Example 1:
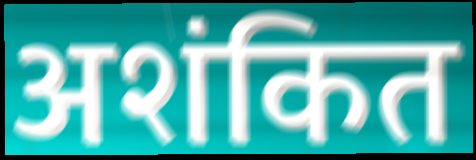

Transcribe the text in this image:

अशंकित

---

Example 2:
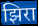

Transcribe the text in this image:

झिरा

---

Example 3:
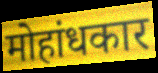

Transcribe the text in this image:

मोहांधकार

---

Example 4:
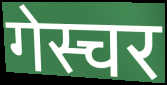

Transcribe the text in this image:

गेस्चर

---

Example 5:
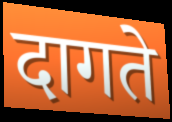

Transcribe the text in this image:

दागते